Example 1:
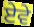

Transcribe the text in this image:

ਏਵੇ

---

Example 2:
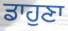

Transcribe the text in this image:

ਡਾਹੁਣਾ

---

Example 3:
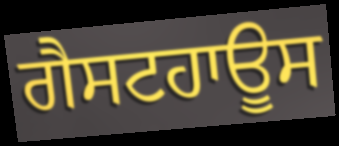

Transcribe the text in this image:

ਗੈਸਟਹਾਊਸ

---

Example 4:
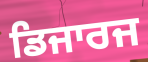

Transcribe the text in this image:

ਡਿਜਾਰਜ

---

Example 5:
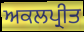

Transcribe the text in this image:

ਅਕਲਪ੍ਰੀਤ